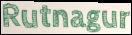
Rutnagur